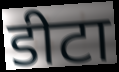
डीटा